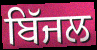
ਬਿੱਜਲ